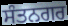
ਸੰਤਨਗਰ